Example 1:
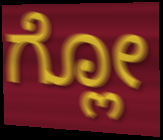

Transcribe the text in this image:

ಗ್ಲೋ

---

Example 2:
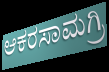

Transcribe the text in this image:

ಆಕರಸಾಮಗ್ರಿ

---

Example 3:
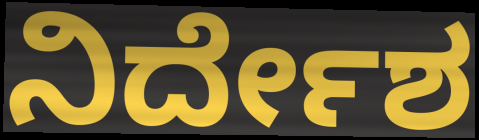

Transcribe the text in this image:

ನಿರ್ದೇಶ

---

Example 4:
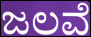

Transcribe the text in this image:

ಜಲವೆ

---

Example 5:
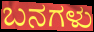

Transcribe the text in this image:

ಬನಗಳು